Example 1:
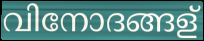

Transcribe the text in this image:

വിനോദങ്ങള്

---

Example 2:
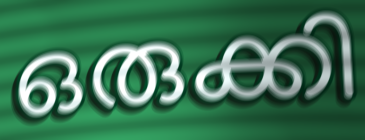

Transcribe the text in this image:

ഒരുക്കി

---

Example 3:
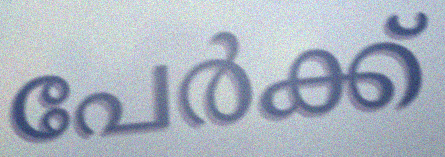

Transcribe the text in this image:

പേർക്ക്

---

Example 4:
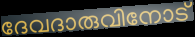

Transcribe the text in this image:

ദേവദാരുവിനോട്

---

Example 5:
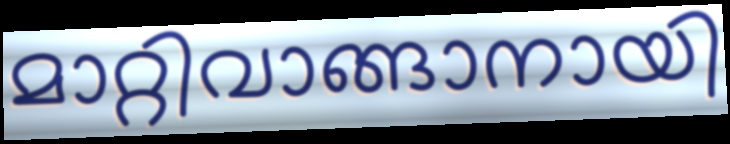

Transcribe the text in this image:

മാറ്റിവാങ്ങാനായി